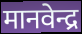
मानवेन्द्र